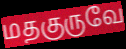
மதகுருவே